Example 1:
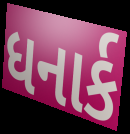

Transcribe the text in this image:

ધનાર્ક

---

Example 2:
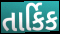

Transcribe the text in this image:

તાર્કિક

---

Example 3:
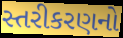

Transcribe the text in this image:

સ્તરીકરણનો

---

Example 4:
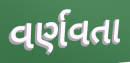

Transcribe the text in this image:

વર્ણવતા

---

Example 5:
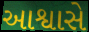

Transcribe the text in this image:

આશ્વાસે